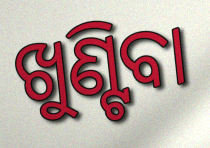
ଖୁଣ୍ଟିବା